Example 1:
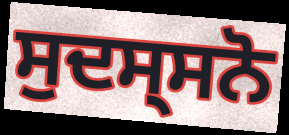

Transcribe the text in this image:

ਸੁਦਸ੍ਸਨੋ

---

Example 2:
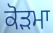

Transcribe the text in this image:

ਕੋੜਮਾ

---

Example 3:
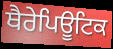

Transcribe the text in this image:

ਥੈਰੇਪਿਊਟਿਕ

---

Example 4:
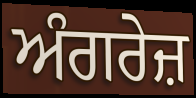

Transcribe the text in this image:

ਅੰਗਰੇਜ਼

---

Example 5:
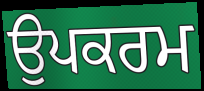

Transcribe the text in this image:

ਉਪਕਰਮ